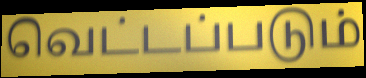
வெட்டப்படும்